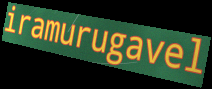
iramurugavel